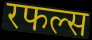
रफल्स